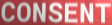
CONSENT